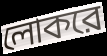
লোকরে